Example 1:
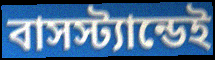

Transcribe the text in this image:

বাসস্ট্যান্ডেই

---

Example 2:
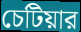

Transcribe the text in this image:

চেটিয়ার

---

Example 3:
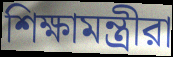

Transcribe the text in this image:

শিক্ষামন্ত্রীরা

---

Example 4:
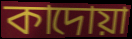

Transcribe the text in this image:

কাদোয়া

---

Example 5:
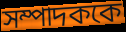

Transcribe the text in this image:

সম্পাদককে